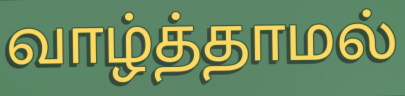
வாழ்த்தாமல்